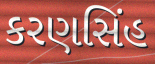
કરણસિંહ